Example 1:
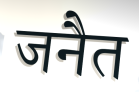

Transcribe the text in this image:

जनैत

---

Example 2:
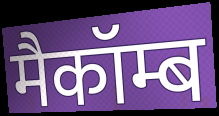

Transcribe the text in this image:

मैकॉम्ब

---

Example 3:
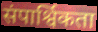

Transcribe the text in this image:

संपार्श्विकता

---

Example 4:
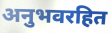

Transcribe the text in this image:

अनुभवरहित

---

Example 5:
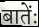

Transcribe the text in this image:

बातेंः